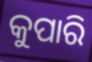
କୁପାରି